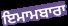
ਇਮਾਮਬਾਰਾ